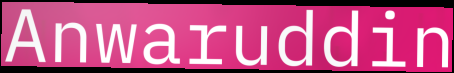
Anwaruddin